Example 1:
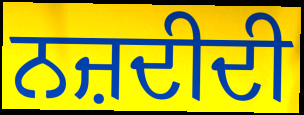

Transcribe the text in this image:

ਨਜ਼ਦੀਦੀ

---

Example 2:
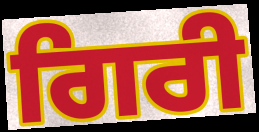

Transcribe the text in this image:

ਗਿਰੀ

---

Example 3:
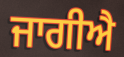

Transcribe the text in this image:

ਜਾਗੀਐ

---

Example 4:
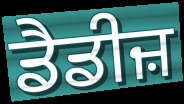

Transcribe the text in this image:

ਡੈਡੀਜ਼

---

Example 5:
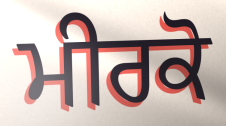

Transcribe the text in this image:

ਮੀਰਕੋ